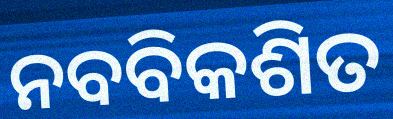
ନବବିକଶିତ